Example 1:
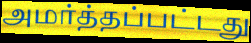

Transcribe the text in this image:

அமர்த்தப்பட்டது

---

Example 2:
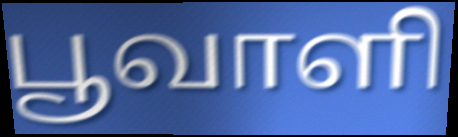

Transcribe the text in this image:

பூவாளி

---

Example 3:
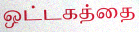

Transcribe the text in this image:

ஒட்டகத்தை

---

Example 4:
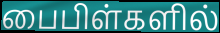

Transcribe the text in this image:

பைபிள்களில்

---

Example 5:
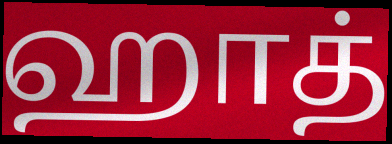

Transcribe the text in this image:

ஹாத்